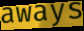
aways